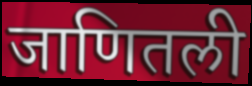
जाणितली